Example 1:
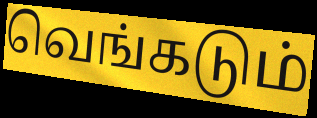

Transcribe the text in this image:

வெங்கடும்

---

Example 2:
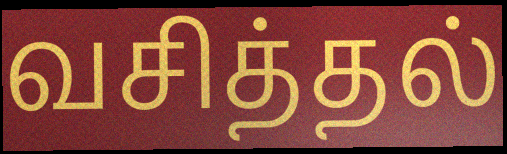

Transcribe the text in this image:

வசித்தல்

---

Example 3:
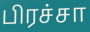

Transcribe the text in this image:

பிரச்சா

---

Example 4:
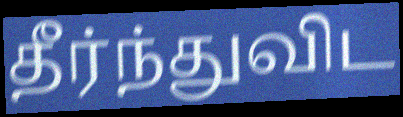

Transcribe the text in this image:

தீர்ந்துவிட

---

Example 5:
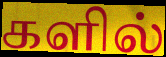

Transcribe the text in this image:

களில்